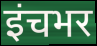
इंचभर